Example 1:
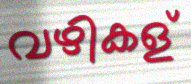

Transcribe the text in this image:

വഴികള്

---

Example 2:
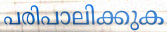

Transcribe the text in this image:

പരിപാലിക്കുക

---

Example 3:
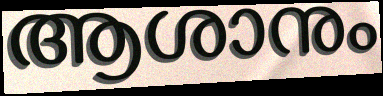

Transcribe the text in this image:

ആശാനും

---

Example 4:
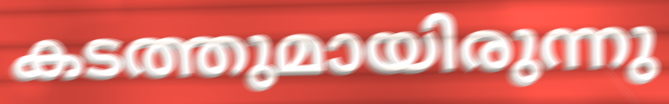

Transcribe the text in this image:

കടത്തുമായിരുന്നു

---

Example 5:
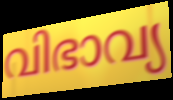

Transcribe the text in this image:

വിഭാവ്യ